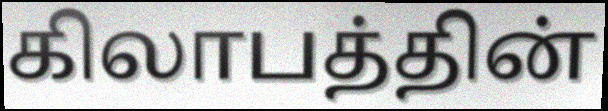
கிலாபத்தின்